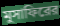
মুসাফিরের